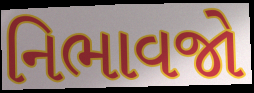
નિભાવજો